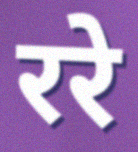
ररे